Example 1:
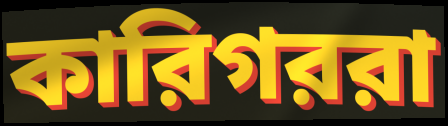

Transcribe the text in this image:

কারিগররা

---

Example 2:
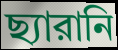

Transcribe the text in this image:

ছ্যারানি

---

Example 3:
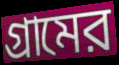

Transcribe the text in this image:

গ্রামের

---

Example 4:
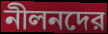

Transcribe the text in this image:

নীলনদের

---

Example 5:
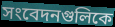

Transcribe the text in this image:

সংবেদনগুলিকে